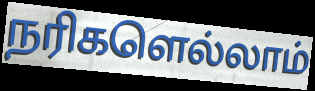
நரிகளெல்லாம்